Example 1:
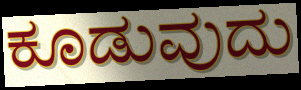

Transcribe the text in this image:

ಕೂಡುವುದು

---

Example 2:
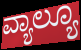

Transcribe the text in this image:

ವ್ಯಾಲ್ಯೂ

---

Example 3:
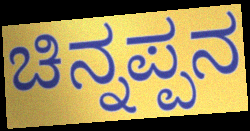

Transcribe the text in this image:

ಚಿನ್ನಪ್ಪನ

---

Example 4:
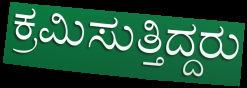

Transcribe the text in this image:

ಕ್ರಮಿಸುತ್ತಿದ್ದರು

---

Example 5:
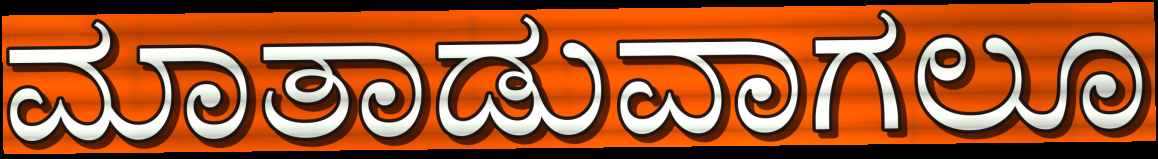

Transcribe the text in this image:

ಮಾತಾಡುವಾಗಲೂ